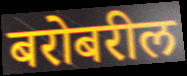
बरोबरील